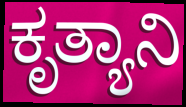
ಕೃತ್ಯಾನಿ